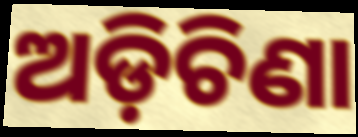
ଅଡ଼ିଚିଣା